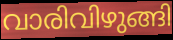
വാരിവിഴുങ്ങി